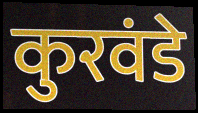
कुरवंडे